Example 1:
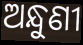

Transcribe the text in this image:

ଅନ୍ଧୁଣୀ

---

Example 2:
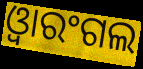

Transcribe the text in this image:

ଓ୍ୱାରଂଗଲ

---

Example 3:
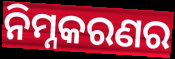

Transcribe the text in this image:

ନିମ୍ନକରଣର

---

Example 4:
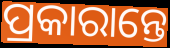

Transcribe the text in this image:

ପ୍ରକାରାନ୍ତେ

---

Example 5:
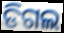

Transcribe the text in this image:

ଡିଗଲ